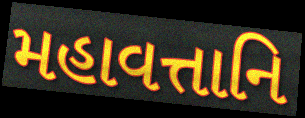
મહાવત્તાનિ